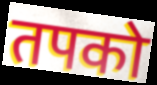
तपको